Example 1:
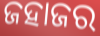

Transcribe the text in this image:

ଜହାଜର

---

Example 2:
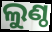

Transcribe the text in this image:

ଲୁଣ୍ଠ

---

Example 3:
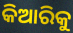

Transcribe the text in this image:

କିଆରିକୁ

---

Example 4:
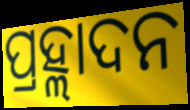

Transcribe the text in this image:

ପ୍ରହ୍ଲାଦନ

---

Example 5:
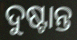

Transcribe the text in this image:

ଦୁଷ୍ଟାନ୍ତ